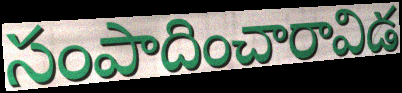
సంపాదించారావిడ